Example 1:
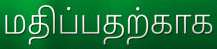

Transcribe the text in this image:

மதிப்பதற்காக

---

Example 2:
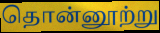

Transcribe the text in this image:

தொன்னூற்று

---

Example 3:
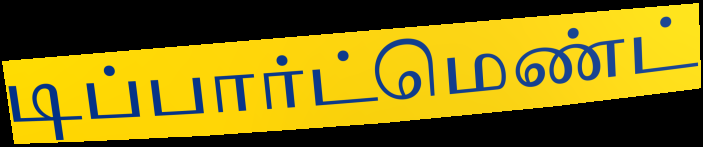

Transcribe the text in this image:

டிப்பார்ட்மெண்ட்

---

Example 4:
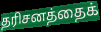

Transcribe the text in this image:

தரிசனத்தைக்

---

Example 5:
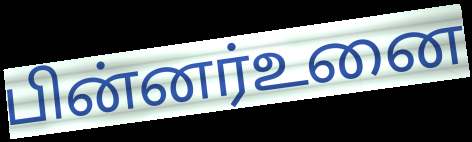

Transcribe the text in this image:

பின்னர்உனை